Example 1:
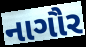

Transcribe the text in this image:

નાગૌર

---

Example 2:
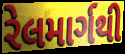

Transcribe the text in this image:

રેલમાર્ગથી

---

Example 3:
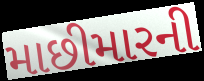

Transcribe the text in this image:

માછીમારની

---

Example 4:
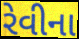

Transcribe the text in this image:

રેવીના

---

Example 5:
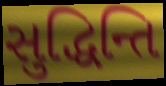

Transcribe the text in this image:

સુદ્ધિન્તિ